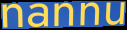
nannu